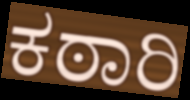
ಕಠಾರಿ